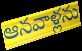
ఆనవాళ్లను